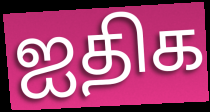
ஐதிக